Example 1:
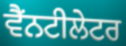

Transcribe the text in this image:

ਵੈਂਨਟੀਲੇਟਰ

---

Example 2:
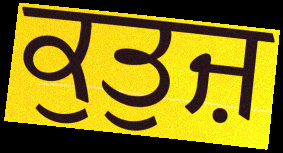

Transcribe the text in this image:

ਕੁਤੁਜ਼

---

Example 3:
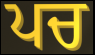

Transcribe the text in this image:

ਪਚ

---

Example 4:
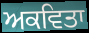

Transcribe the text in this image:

ਅਕਵਿਤਾ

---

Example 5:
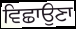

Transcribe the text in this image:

ਵਿਛਾਉਣਾ